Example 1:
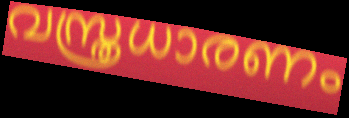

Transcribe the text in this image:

വസ്ത്രധാരണം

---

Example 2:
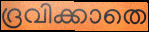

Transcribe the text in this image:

ദ്രവിക്കാതെ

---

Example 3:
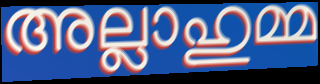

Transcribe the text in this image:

അല്ലാഹുമ്മ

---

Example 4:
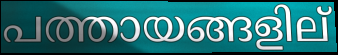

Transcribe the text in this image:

പത്തായങ്ങളില്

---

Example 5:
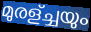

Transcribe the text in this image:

മുരള്ച്ചയും